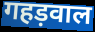
गहड़वाल